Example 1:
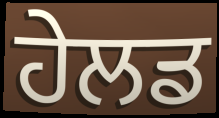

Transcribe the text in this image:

ਹੇਲਡ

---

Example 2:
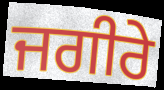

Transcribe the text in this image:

ਜਗੀਰੇ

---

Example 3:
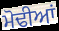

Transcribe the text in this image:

ਮੋਢੀਆਂ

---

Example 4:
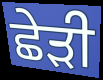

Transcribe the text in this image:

ਛੇੜੀ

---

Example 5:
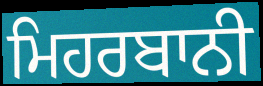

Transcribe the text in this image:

ਮਿਹਰਬਾਨੀ